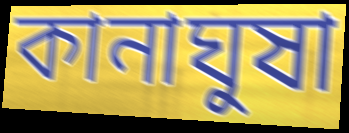
কানাঘুষা